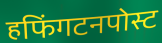
हफिंगटनपोस्ट